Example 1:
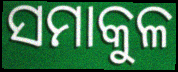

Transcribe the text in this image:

ସମାକୁଳ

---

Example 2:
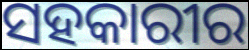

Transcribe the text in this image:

ସହକାରୀର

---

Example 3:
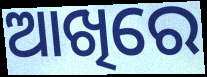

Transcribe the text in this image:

ଆଖିରେ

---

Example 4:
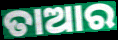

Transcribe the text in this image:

ତାଆର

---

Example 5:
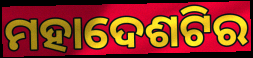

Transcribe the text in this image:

ମହାଦେଶଟିର